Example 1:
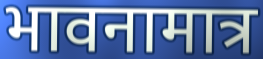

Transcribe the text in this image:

भावनामात्र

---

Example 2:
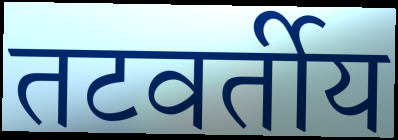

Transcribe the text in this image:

तटवर्तीय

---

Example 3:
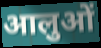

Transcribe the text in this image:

आलुओं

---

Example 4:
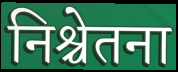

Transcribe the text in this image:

निश्चेतना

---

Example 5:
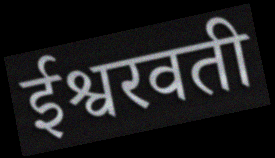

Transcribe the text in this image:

ईश्वरवती